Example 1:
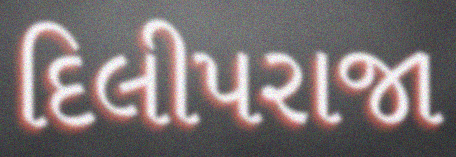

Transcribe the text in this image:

દિલીપરાજા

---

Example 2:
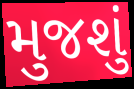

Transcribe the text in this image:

મુજશું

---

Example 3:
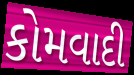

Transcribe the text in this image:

કોમવાદી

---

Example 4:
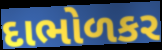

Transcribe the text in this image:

દાભોળકર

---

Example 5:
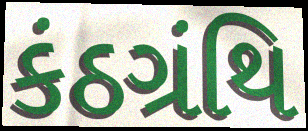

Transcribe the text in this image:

કંઠગ્રંથિ